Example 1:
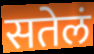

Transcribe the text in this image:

सतेलं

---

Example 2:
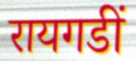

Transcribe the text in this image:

रायगडीं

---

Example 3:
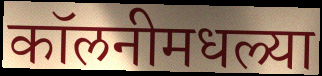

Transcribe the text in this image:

कॉलनीमधल्या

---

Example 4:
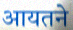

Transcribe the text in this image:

आयतने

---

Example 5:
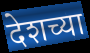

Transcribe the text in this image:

देशच्या